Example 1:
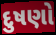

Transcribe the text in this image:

દુષણો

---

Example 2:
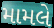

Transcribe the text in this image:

મામલે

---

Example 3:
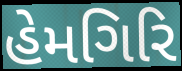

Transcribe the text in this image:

હેમગિરિ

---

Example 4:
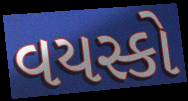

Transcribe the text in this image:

વયસ્કો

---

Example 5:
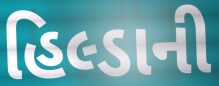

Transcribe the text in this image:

હિલ્ડાની